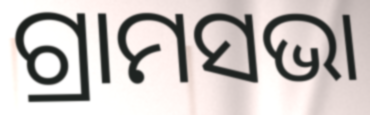
ଗ୍ରାମସଭା